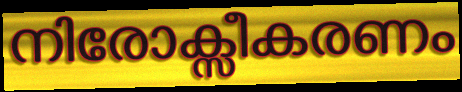
നിരോക്സീകരണം